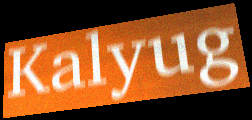
Kalyug